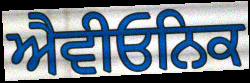
ਐਵੀਓਨਿਕ